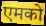
एमको